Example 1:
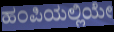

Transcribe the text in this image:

ಹಂಪಿಯಲ್ಲಿಯೇ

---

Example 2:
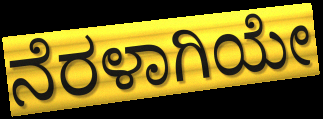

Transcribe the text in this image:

ನೆರಳಾಗಿಯೇ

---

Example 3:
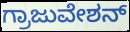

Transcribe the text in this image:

ಗ್ರಾಜುವೇಶನ್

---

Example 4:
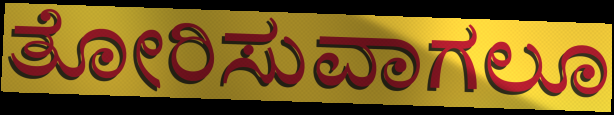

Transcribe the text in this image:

ತೋರಿಸುವಾಗಲೂ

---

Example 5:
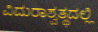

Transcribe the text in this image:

ವಿದುರಾಶ್ವತ್ಥದಲ್ಲಿ